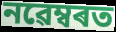
নৱেম্বৰত